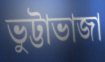
ভুট্টাভাজা